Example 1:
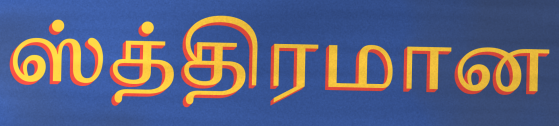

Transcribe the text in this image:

ஸ்த்திரமான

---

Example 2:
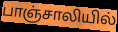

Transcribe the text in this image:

பாஞ்சாலியில்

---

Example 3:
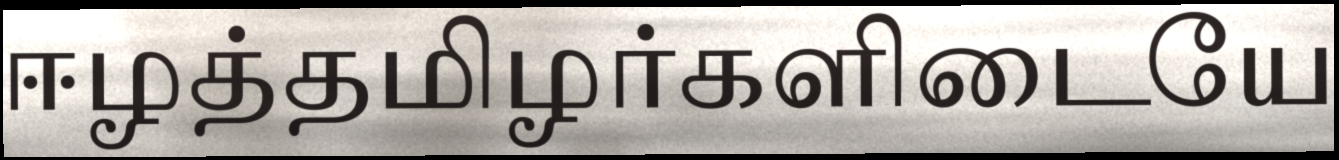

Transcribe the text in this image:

ஈழத்தமிழர்களிடையே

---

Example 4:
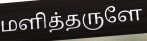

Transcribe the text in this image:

மளித்தருளே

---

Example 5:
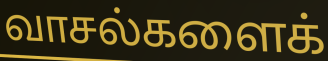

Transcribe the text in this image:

வாசல்களைக்